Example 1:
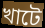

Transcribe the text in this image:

খাটে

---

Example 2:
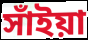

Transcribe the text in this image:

সাঁইয়া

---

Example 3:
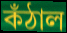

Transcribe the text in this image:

কঁঠাল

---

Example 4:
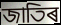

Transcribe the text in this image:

জাতিৰ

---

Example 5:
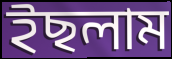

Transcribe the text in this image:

ইছলাম